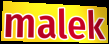
malek